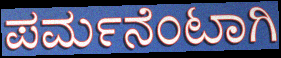
ಪರ್ಮನೆಂಟಾಗಿ